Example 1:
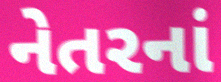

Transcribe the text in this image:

નેતરનાં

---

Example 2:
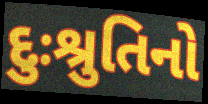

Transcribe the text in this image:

દુઃશ્રુતિનો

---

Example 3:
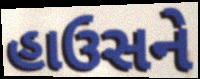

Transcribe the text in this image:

હાઉસને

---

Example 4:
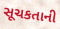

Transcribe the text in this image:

સૂચકતાની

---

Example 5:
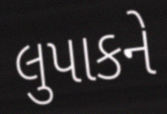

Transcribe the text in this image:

લુપાકને